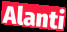
Alanti